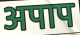
अपाप